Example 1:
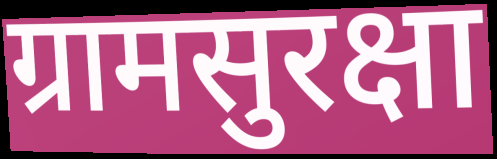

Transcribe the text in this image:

ग्रामसुरक्षा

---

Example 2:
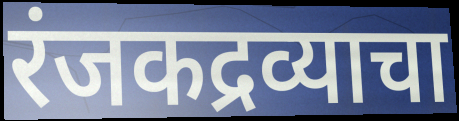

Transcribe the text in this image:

रंजकद्रव्याचा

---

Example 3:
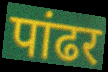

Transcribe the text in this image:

पांढर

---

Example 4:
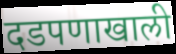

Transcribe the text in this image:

दडपणाखाली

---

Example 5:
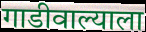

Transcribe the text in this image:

गाडीवाल्याला